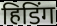
हिडिंग